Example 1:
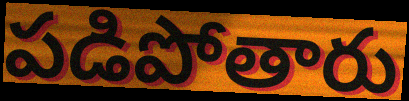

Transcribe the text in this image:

పడిపోతారు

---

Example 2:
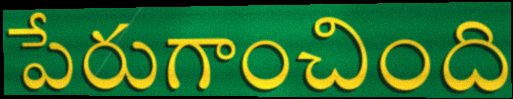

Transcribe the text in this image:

పేరుగాంచింది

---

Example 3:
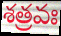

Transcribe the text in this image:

శత్రవః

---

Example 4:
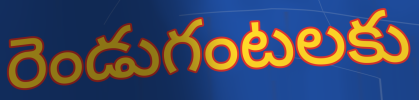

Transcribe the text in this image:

రెండుగంటలకు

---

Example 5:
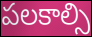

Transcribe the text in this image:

పలకాల్సి